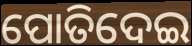
ପୋତିଦେଇ